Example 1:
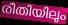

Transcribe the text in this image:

രീതിയിലും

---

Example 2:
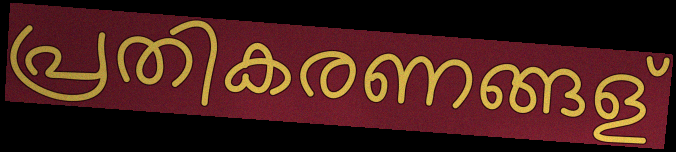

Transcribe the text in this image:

പ്രതികരണങ്ങള്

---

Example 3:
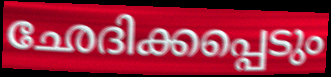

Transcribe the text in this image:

ഛേദിക്കപ്പെടും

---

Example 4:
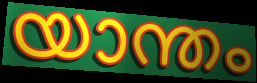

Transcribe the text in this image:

യാന്തം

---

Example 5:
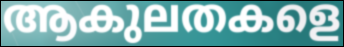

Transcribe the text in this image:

ആകുലതകളെ